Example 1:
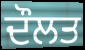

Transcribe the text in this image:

ਦੌਲਤ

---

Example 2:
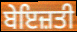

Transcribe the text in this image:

ਬੇਇਜ਼ਤੀ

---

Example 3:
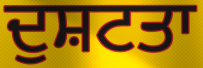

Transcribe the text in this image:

ਦੁਸ਼ਟਤਾ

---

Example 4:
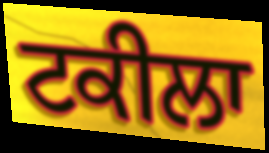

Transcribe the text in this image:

ਟਕੀਲਾ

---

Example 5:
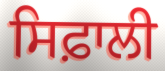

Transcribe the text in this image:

ਸਿਫ਼ਾਲੀ